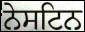
ਨੇਸਟਿਨ